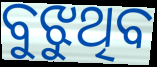
ବୁଝୁଥିବ